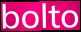
bolto